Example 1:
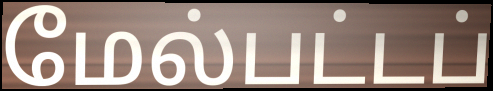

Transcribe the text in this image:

மேல்பட்டப்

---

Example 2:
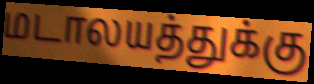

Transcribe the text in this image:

மடாலயத்துக்கு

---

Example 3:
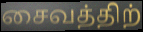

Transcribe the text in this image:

சைவத்திற்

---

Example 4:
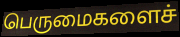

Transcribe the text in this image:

பெருமைகளைச்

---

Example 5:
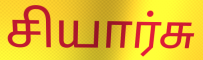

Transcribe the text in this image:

சியார்சு